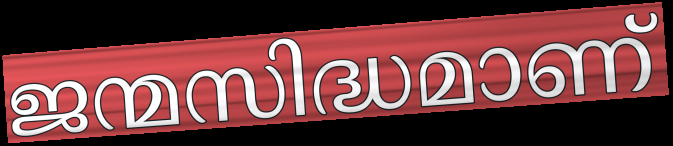
ജന്മസിദ്ധമാണ്